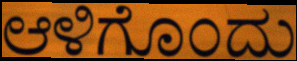
ಆಳಿಗೊಂದು